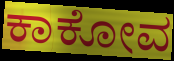
ಕಾಕೋವ